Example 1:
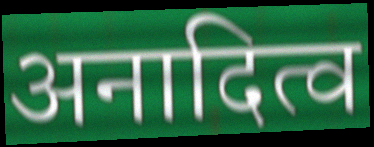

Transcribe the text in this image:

अनादित्व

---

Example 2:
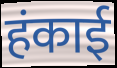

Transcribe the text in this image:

हंकाई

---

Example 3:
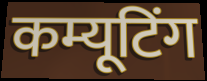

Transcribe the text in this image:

कम्यूटिंग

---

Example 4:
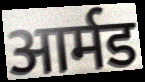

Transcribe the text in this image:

आर्मड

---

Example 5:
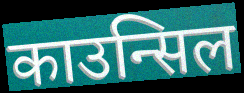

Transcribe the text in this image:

काउन्सिल